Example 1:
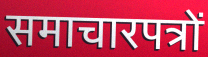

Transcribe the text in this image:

समाचारपत्रों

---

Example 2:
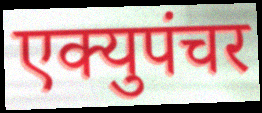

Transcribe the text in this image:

एक्युपंचर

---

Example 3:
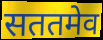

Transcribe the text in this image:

सततमेव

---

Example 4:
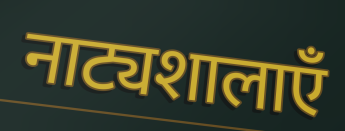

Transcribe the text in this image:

नाट्यशालाएँ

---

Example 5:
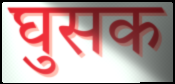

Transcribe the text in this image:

घुसक